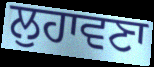
ਲੁਹਾਵਣਾ